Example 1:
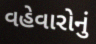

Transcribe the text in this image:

વહેવારોનું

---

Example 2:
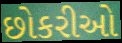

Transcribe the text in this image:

છોકરીઓ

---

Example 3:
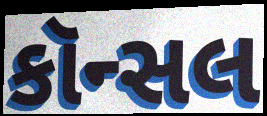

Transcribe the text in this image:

કૉન્સલ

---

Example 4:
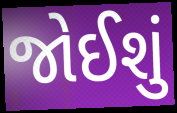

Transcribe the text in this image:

જોઈશું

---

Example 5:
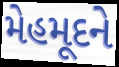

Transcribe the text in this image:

મેહમૂદને